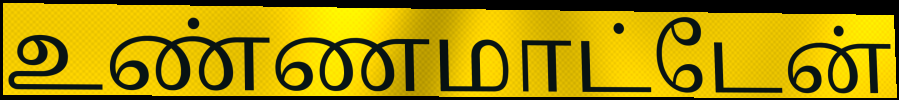
உண்ணமாட்டேன்